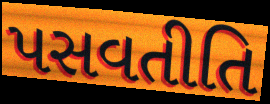
પસવતીતિ